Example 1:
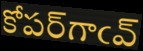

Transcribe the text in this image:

కోపర్‌గాఁవ్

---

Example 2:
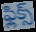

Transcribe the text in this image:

ఫ్లిక్స్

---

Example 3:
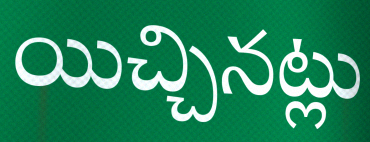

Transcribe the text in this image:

యిచ్చినట్లు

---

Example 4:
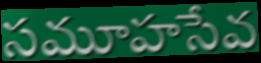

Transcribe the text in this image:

సమూహసేవ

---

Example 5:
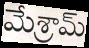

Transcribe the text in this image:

మేశ్రామ్